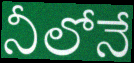
నీలోనే